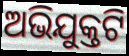
ଅଭିଯୁକ୍ତଟି